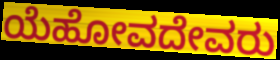
ಯೆಹೋವದೇವರು